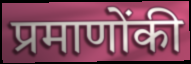
प्रमाणोंकी